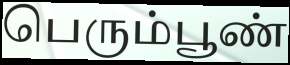
பெரும்பூண்